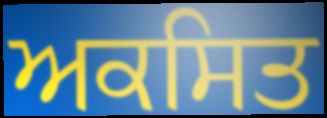
ਅਕਸਿਤ